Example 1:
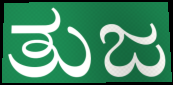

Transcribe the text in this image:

ತುಜ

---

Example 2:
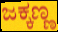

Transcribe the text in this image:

ಜಕ್ಕಣ್ಣ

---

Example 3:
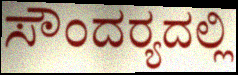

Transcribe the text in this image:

ಸೌಂದರ‍್ಯದಲ್ಲಿ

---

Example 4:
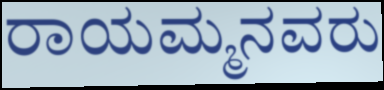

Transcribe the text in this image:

ರಾಯಮ್ಮನವರು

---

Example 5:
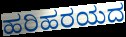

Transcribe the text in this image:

ಹರಿಹರಯದ